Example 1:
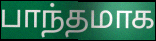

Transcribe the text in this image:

பாந்தமாக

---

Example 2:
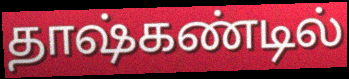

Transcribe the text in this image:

தாஷ்கண்டில்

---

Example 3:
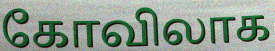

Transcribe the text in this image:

கோவிலாக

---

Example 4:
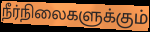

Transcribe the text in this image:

நீர்நிலைகளுக்கும்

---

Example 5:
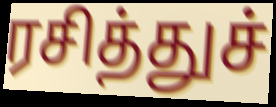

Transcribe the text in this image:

ரசித்துச்